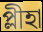
প্লীহা